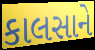
કાલસાને